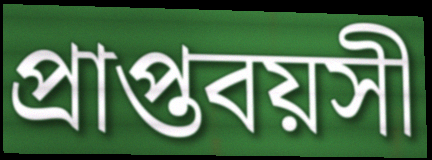
প্রাপ্তবয়সী